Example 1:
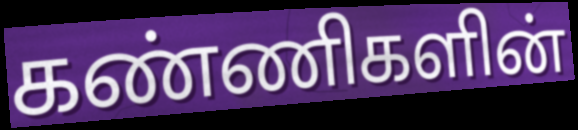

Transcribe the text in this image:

கண்ணிகளின்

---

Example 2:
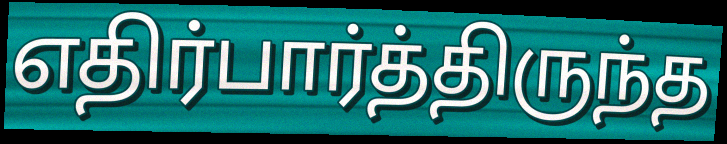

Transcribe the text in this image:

எதிர்பார்த்திருந்த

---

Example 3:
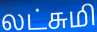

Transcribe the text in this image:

லட்சுமி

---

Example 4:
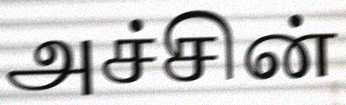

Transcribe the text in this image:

அச்சின்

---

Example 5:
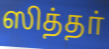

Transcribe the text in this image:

ஸித்தர்